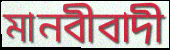
মানবীবাদী